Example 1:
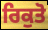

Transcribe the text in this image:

ਰਿਕੁਤੋ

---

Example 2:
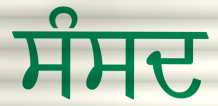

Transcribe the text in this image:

ਸੰਸਦ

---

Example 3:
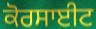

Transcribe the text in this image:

ਕੋਰਸਾਈਟ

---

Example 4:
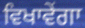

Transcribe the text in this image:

ਵਿਖਾਵੇਂਗਾ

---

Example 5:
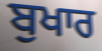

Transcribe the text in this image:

ਬੁਖਾਰ